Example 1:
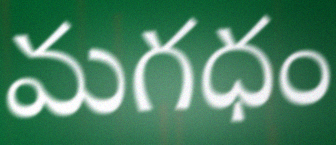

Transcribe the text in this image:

మగధం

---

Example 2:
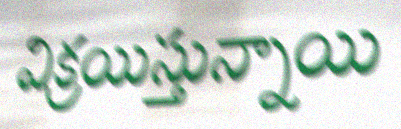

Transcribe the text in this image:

విక్రయిస్తున్నాయి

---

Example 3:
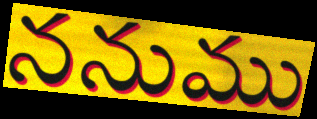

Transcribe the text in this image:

ననుము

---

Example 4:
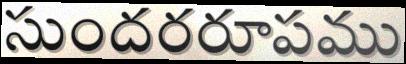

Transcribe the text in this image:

సుందరరూపము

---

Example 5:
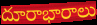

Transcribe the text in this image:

దూరాభారాలు